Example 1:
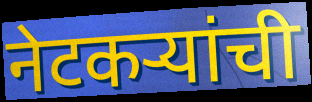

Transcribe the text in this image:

नेटकऱ्यांची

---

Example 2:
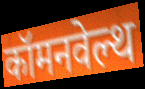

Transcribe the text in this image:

कॉमनवेल्थ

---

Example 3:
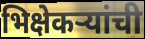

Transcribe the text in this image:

भिक्षेकऱ्यांची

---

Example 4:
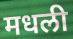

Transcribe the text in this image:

मधली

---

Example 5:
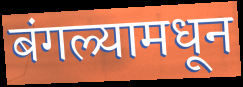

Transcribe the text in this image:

बंगल्यामधून